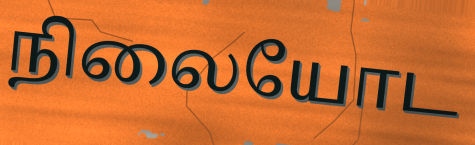
நிலையோட